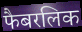
फैबरलिक